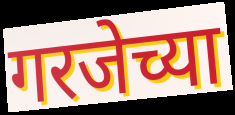
गरजेच्या